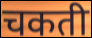
चकती